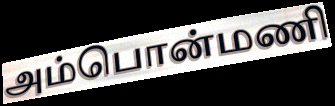
அம்பொன்மணி